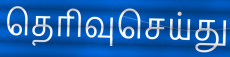
தெரிவுசெய்து